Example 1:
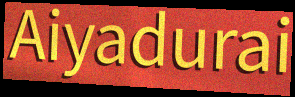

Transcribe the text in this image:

Aiyadurai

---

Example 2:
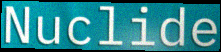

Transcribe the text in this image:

Nuclide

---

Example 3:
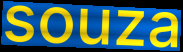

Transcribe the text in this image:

souza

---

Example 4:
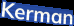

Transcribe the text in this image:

Kerman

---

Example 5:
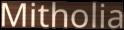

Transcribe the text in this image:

Mitholia